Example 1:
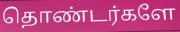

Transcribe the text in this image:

தொண்டர்களே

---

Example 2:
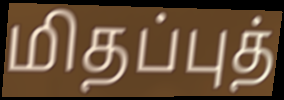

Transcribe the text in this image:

மிதப்புத்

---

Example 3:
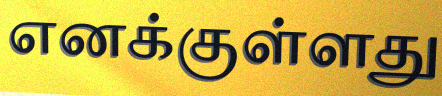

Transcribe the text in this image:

எனக்குள்ளது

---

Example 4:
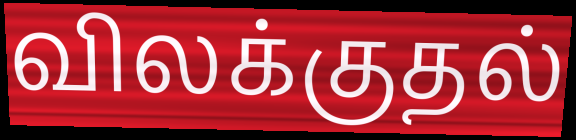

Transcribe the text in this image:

விலக்குதல்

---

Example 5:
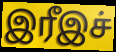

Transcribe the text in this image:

இரீஇச்